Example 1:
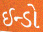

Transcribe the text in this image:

ઈન્ડો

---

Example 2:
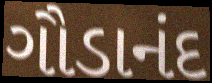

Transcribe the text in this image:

ગૌડાનંદ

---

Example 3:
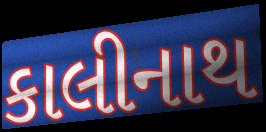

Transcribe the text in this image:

કાલીનાથ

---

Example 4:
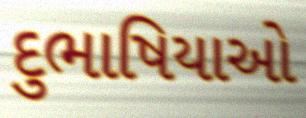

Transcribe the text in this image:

દુભાષિયાઓ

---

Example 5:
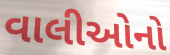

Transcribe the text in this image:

વાલીઓનો